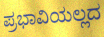
ಪ್ರಭಾವಿಯಲ್ಲದ